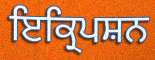
ਇਕ੍ਰਿਪਸ਼ਨ